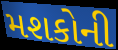
મશકોની